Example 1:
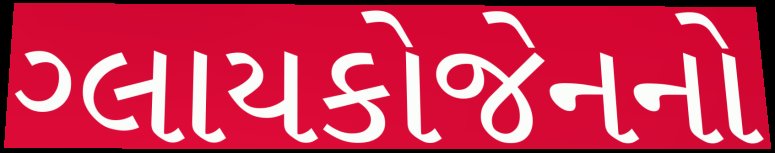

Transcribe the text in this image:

ગ્લાયકોજેનનો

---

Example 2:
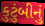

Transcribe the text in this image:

કુટુંબીનું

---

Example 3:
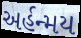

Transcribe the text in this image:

અર્હન્મય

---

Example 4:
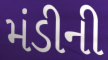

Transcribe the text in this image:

મંડીની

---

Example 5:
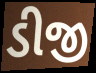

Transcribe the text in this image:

ડીજી